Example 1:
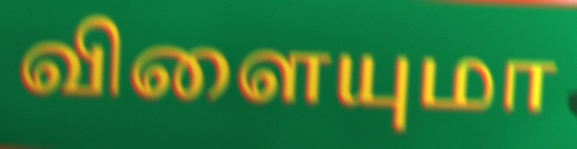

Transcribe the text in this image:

விளையுமா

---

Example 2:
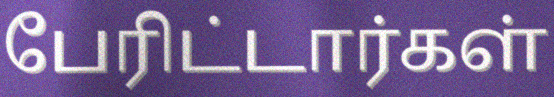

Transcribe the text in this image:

பேரிட்டார்கள்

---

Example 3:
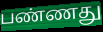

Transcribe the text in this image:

பண்ணது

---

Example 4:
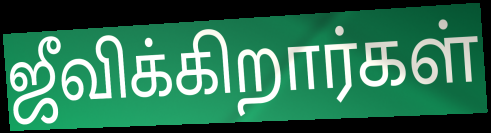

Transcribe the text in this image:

ஜீவிக்கிறார்கள்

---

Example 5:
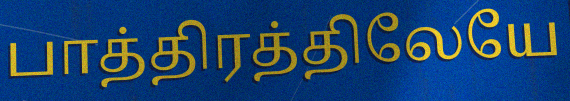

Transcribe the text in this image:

பாத்திரத்திலேயே